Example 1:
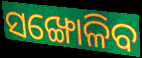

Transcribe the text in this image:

ସଙ୍ଖୋଳିବ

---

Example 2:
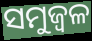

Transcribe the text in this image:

ସମୁଜ୍ୱଳ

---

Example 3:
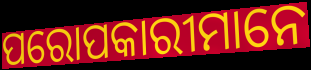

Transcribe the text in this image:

ପରୋପକାରୀମାନେ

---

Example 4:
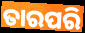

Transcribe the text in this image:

ତାରପରି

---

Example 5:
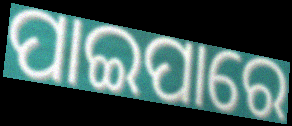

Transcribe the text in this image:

ପାଇପାରେ